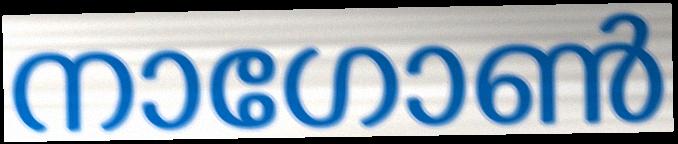
നാഗോൺ